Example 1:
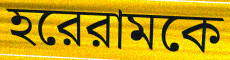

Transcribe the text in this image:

হরেরামকে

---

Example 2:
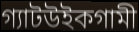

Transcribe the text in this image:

গ্যাটউইকগামী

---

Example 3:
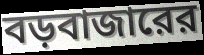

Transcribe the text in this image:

বড়বাজারের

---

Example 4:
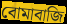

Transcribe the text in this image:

বোমাবাজি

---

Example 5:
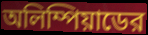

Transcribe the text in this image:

অলিম্পিয়াডের